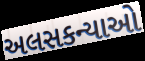
અલસકન્યાઓ